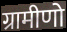
ग्रामीणो